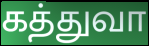
கத்துவா